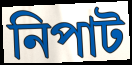
নিপাট